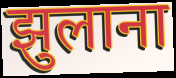
झुलाना